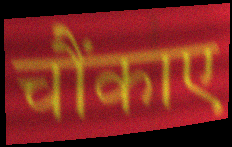
चौंकाए